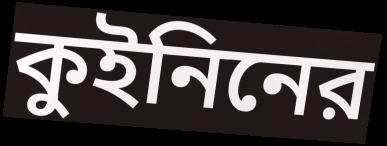
কুইনিনের